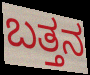
ಬತ್ತನ